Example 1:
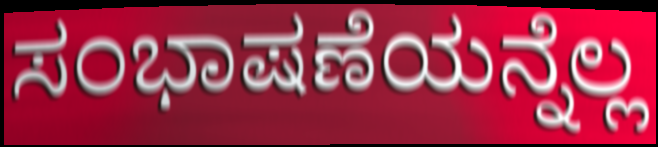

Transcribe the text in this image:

ಸಂಭಾಷಣೆಯನ್ನೆಲ್ಲ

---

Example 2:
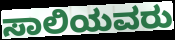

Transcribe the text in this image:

ಸಾಲಿಯವರು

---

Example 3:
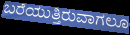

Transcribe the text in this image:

ಬರೆಯುತ್ತಿರುವಾಗಲೂ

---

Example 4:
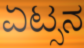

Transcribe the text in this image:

ಏಟ್ಸನ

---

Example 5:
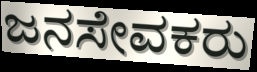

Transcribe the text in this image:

ಜನಸೇವಕರು